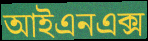
আইএনএক্স